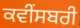
ਕਵੀਂਸਬਰੀ